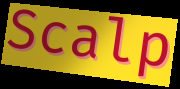
Scalp